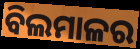
ବିଲମାଳର